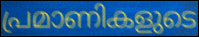
പ്രമാണികളുടെ